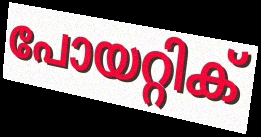
പോയറ്റിക്